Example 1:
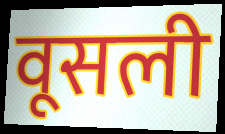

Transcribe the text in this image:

वूसली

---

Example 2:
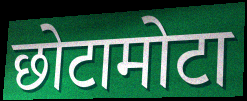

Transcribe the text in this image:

छोटामोटा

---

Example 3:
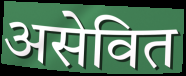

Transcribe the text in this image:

असेवित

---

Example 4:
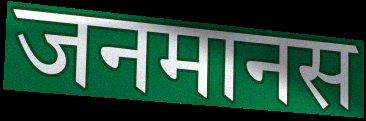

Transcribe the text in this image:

जनमानस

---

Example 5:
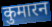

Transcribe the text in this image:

कुमारन